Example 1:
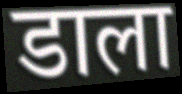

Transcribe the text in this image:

डाला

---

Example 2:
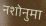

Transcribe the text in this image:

नशोनुमा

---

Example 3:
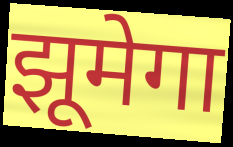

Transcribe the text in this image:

झूमेगा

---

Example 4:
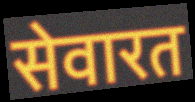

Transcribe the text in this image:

सेवारत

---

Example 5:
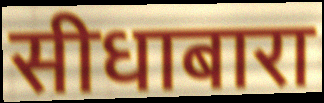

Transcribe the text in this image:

सीधाबारा